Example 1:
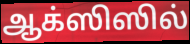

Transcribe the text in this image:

ஆக்ஸிஸில்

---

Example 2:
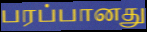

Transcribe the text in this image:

பரப்பானது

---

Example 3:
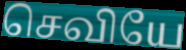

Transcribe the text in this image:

செவியே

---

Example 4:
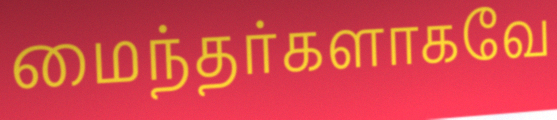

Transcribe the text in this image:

மைந்தர்களாகவே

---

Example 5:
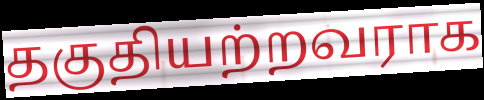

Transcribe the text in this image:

தகுதியற்றவராக